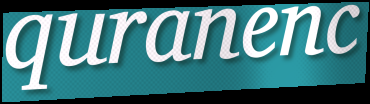
quranenc